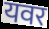
यवर